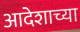
आदेशाच्या